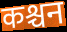
कश्चन